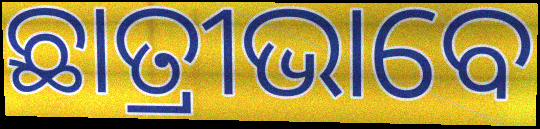
ଛାତ୍ରୀଭାବେ